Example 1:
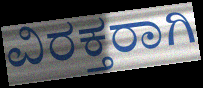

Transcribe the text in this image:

ವಿರಕ್ತರಾಗಿ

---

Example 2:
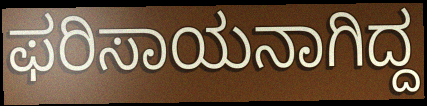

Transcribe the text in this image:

ಫರಿಸಾಯನಾಗಿದ್ದ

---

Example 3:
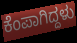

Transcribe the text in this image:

ಕೆಂಪಾಗಿದ್ದಳು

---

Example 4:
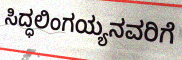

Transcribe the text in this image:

ಸಿದ್ಧಲಿಂಗಯ್ಯನವರಿಗೆ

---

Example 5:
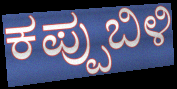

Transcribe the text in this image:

ಕಪ್ಪುಬಿಳಿ